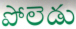
పోలెడు